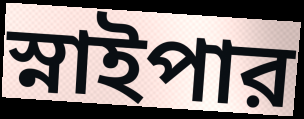
স্নাইপার